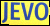
JEVO